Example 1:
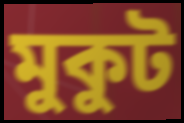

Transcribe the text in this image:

মুকুট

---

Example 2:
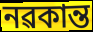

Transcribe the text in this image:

নৱকান্ত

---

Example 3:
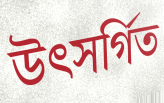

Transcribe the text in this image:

উৎসৰ্গিত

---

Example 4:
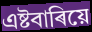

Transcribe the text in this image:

এষ্টবাৰিয়ে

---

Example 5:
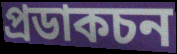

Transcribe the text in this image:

প্ৰডাকচন